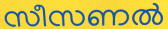
സീസണൽ